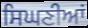
ਸਿਘਣੀਆਂ